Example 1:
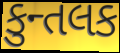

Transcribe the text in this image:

કુન્તલક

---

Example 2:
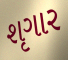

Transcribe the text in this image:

શૃગાર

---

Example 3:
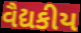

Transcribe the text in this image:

વૈદ્યકીય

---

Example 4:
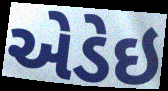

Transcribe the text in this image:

એડેઇ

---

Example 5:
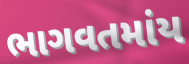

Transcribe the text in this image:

ભાગવતમાંય